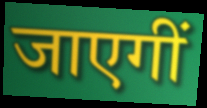
जाएगीं